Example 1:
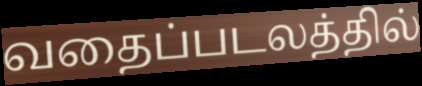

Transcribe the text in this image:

வதைப்படலத்தில்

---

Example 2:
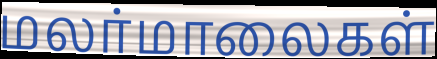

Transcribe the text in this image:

மலர்மாலைகள்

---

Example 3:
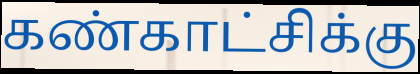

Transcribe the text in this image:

கண்காட்சிக்கு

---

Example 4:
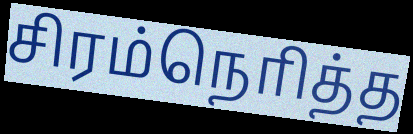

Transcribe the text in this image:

சிரம்நெரித்த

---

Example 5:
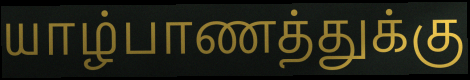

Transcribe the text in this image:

யாழ்பாணத்துக்கு